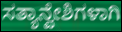
ಸತ್ಯಾನ್ವೇಶಿಗಳಾಗಿ